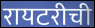
रायटरीची